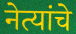
नेत्यांचे